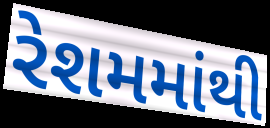
રેશમમાંથી